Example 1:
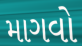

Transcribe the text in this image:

માગવો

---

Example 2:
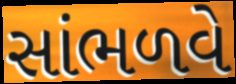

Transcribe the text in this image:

સાંભળવે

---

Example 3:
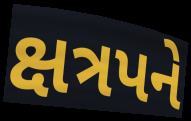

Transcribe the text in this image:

ક્ષત્રપને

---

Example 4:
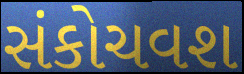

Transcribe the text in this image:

સંકોચવશ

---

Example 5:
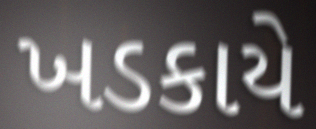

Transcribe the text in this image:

ખડકાયે